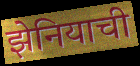
झेनियाची